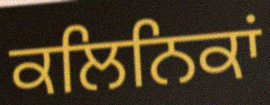
ਕਲਿਨਿਕਾਂ